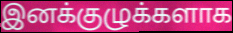
இனக்குழுக்களாக